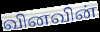
வினவின்